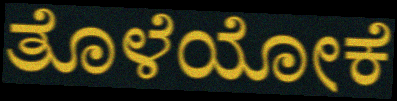
ತೊಳೆಯೋಕೆ